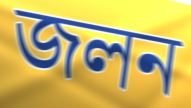
জলন